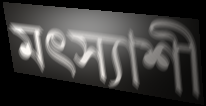
মৎস্যাশী